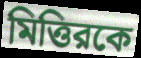
মিত্তিরকে